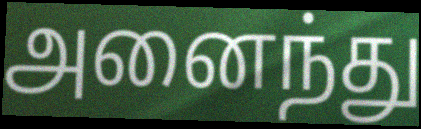
அனைந்து